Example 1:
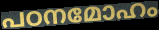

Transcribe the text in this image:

പഠനമോഹം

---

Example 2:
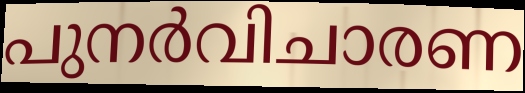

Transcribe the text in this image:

പുനർവിചാരണ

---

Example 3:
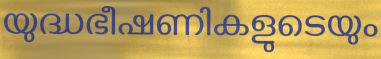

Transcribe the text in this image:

യുദ്ധഭീഷണികളുടെയും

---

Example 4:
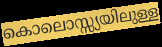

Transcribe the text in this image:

കൊലൊസ്സ്യയിലുള്ള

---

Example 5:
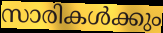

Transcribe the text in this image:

സാരികൾക്കും